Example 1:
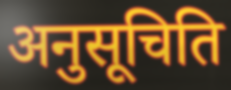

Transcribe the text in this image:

अनुसूचिति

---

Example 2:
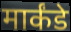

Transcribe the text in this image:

मार्कंडे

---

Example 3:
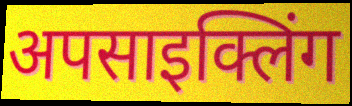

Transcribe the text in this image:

अपसाइक्लिंग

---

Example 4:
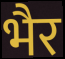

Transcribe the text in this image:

भैर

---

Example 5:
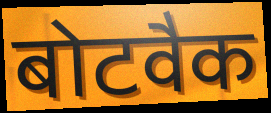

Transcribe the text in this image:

बोटवैक